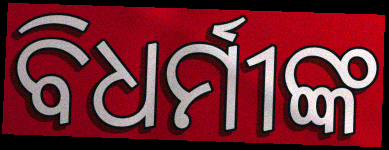
ବିଧର୍ମୀଙ୍କ